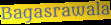
Bagasrawala